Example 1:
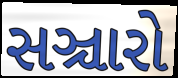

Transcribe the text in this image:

સઞ્ચારો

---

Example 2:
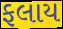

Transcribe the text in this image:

ફલાય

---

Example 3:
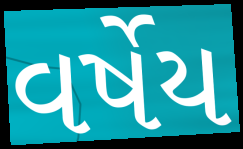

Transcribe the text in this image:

વર્ષેય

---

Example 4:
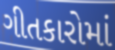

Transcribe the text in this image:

ગીતકારોમાં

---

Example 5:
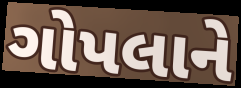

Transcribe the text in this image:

ગોપલાને